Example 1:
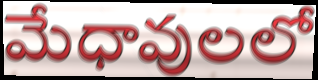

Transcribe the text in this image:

మేధావులలో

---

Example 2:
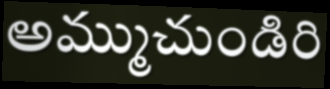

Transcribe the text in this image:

అమ్ముచుండిరి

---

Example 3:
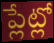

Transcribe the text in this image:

ప్లేట్లో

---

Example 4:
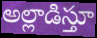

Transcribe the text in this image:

అల్లాడిస్తూ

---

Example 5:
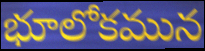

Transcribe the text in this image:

భూలోకమున